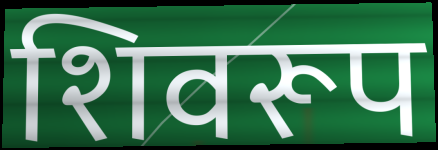
शिवरूप